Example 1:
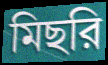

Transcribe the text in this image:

মিছরি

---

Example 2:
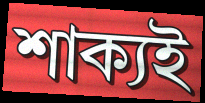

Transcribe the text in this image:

শাক্যই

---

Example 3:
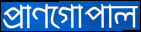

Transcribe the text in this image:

প্রাণগোপাল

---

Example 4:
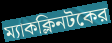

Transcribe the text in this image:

ম্যাকক্লিনটকের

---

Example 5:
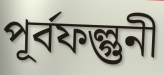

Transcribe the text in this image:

পূর্বফল্গুনী